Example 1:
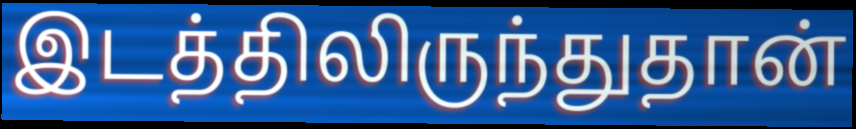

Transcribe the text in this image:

இடத்திலிருந்துதான்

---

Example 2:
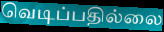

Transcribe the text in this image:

வெடிப்பதில்லை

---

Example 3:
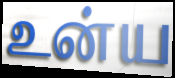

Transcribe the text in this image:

உன்ய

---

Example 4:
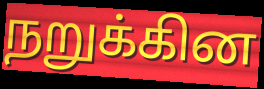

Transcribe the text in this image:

நறுக்கின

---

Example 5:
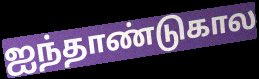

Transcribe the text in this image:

ஐந்தாண்டுகால